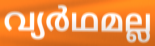
വ്യർഥമല്ല